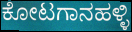
ಕೋಟಗಾನಹಳ್ಳಿ